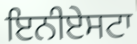
ਇਨੀਏਸਟਾ